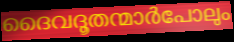
ദൈവദൂതന്മാർപോലും